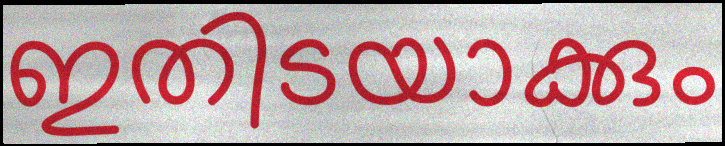
ഇതിടയാക്കും